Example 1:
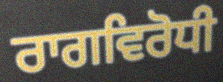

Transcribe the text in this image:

ਰਾਗਵਿਰੋਧੀ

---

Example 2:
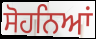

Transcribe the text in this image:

ਸੋਹਨਿਆਂ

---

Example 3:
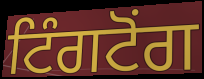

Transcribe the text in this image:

ਟਿੰਗਟੋਂਗ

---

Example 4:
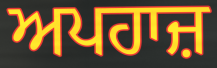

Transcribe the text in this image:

ਅਪਹਾਜ਼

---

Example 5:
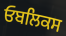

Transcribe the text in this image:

ਓਬਲਿਕਸ